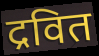
द्रवित